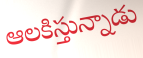
ఆలకిస్తున్నాడు